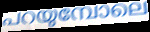
പറയുമ്പോലെ